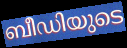
ബീഡിയുടെ